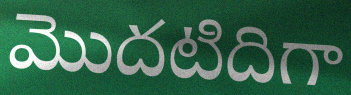
మొదటిదిగా